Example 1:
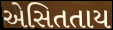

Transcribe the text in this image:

એસિતતાય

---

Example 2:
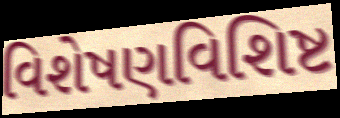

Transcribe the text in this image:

વિશેષણવિશિષ્ટ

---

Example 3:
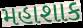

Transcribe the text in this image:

મહાશાક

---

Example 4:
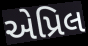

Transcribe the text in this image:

એપ્રિલ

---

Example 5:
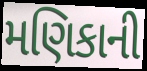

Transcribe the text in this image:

મણિકાની